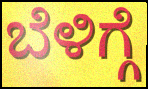
ಬೆಳಿಗ್ಗೆ